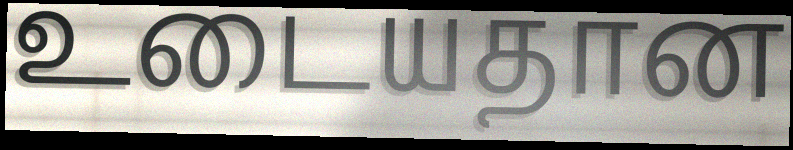
உடையதான